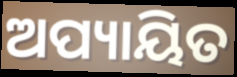
ଅପ୍ୟାୟିତ